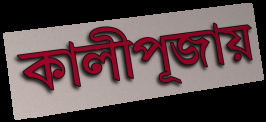
কালীপূজায়